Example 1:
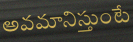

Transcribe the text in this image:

అవమానిస్తుంటే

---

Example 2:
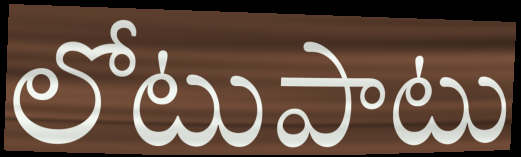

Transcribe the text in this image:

లోటుపాటు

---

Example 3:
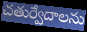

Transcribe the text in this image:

చతుర్వేదాలను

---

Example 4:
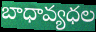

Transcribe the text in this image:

బాధావ్యధల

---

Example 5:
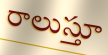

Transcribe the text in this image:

రాలుస్తూ